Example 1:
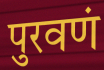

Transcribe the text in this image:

पुरवणं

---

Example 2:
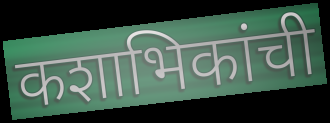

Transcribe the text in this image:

कशाभिकांची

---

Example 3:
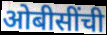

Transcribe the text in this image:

ओबीसींची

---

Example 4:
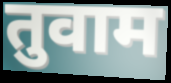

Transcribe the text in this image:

तुवाम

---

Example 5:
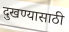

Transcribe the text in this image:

दुखण्यासाठी